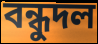
বন্ধুদল